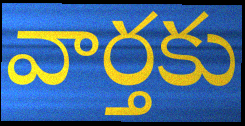
వార్తకు